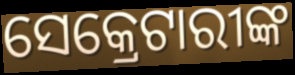
ସେକ୍ରେଟାରୀଙ୍କ